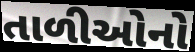
તાળીઓનો